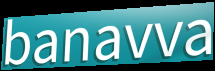
banavva